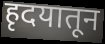
हृदयातून